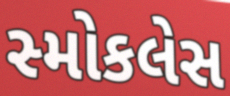
સ્મોકલેસ